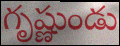
గృష్ణుండు